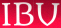
IBU